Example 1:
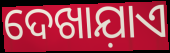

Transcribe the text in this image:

ଦେଖାଯ଼ାଏ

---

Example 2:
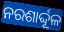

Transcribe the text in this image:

ନରଶାର୍ଦ୍ଦୂଳ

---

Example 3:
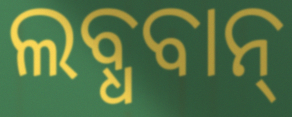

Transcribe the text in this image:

ଲବ୍ଧବାନ୍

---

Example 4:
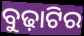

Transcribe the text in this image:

ବୁଢ଼ାଟିର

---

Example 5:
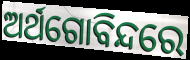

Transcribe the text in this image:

ଅର୍ଥଗୋବିନ୍ଦରେ